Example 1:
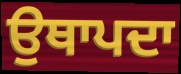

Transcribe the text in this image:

ਉਥਾਪਦਾ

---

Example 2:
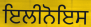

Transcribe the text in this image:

ਇਲੀਨੋਇਸ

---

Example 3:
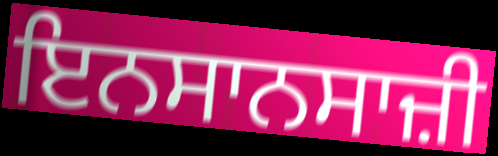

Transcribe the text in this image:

ਇਨਸਾਨਸਾਜ਼ੀ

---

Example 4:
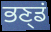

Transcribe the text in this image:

ਭਣ੍ਡਂ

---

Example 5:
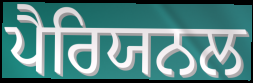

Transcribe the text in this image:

ਪੈਰਿਯਨਲ